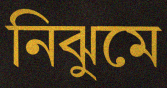
নিঝুমে